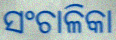
ସଂଚାଳିକା